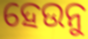
ହେଉନୁ